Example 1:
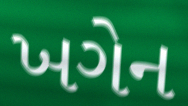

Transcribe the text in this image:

ખગેન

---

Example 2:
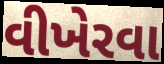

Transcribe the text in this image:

વીખેરવા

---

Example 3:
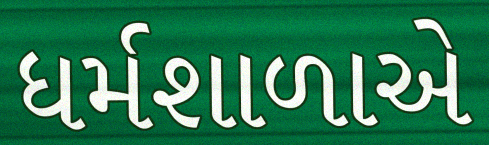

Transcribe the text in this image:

ધર્મશાળાએ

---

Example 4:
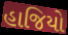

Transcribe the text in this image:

હાજિયો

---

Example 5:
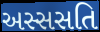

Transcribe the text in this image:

અસ્સસતિ